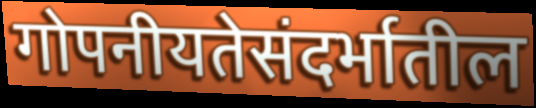
गोपनीयतेसंदर्भातील